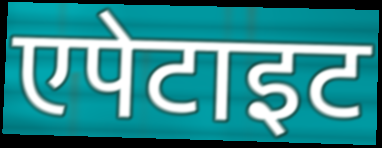
एपेटाइट